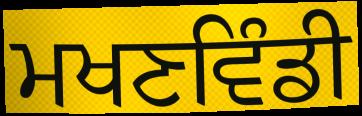
ਮਖਣਵਿੰਡੀ